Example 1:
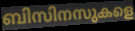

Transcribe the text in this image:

ബിസിനസുകളെ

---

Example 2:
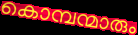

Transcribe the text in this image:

കൊമ്പന്മാരും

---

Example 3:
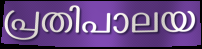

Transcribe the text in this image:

പ്രതിപാലയ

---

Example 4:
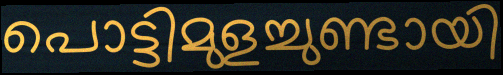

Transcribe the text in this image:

പൊട്ടിമുളച്ചുണ്ടായി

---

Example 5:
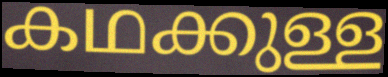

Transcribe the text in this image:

കഥക്കുള്ള